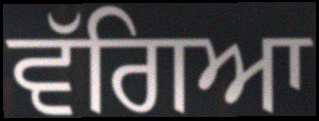
ਵੱਗਿਆ